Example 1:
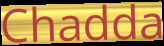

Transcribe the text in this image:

Chadda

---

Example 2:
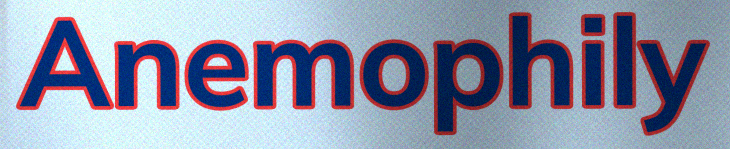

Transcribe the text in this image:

Anemophily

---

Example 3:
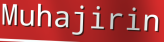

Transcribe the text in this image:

Muhajirin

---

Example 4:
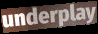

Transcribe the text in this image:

underplay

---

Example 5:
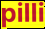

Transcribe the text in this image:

pilli